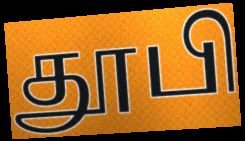
தூபி